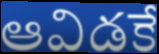
ఆవిడకే